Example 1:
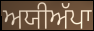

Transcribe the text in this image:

ਅਯੀਅੱਪਾ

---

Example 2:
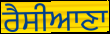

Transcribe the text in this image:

ਰੈਸੀਆਣਾ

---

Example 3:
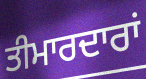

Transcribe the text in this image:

ਤੀਮਾਰਦਾਰਾਂ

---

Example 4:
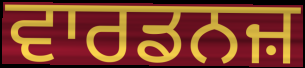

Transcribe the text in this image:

ਵਾਰਡਨਜ਼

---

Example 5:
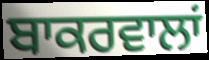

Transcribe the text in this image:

ਬਾਕਰਵਾਲਾਂ